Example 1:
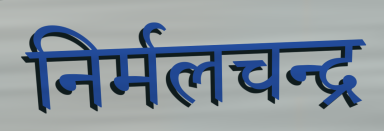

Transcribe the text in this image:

निर्मलचन्द्र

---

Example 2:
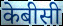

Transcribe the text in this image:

केबीसी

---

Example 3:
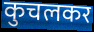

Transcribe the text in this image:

कुचलकर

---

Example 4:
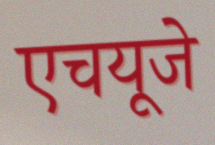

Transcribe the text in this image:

एचयूजे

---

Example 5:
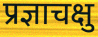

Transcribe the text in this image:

प्रज्ञाचक्षु